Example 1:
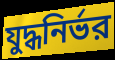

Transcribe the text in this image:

যুদ্ধনির্ভর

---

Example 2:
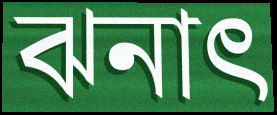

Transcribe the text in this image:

ঝনাৎ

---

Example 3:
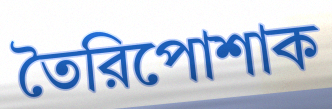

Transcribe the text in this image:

তৈরিপোশাক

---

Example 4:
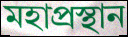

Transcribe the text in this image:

মহাপ্রস্থান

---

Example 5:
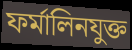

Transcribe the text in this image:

ফর্মালিনযুক্ত